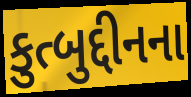
કુત્બુદ્દીનના